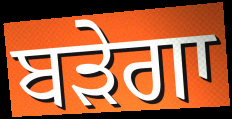
ਬੜੇਗਾ